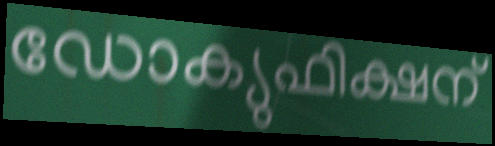
ഡോക്യുഫിക്ഷന്